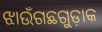
ଝାଉଁଗଛଗୁଡ଼ାକ